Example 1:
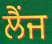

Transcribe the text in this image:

ਲੈਂਜ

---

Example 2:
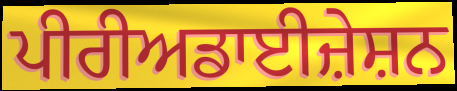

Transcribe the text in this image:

ਪੀਰੀਅਡਾਈਜ਼ੇਸ਼ਨ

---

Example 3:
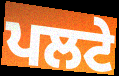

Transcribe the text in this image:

ਪਲਟੇ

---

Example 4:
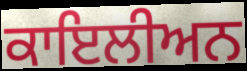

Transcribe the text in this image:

ਕਾਇਲੀਅਨ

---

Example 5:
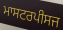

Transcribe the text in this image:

ਮਾਸਟਰਪੀਸਜ